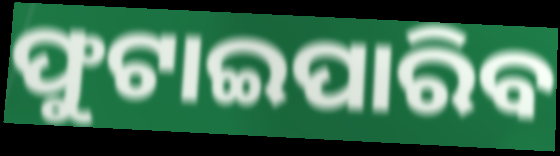
ଫୁଟାଇପାରିବ